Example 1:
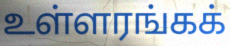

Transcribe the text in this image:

உள்ளரங்கக்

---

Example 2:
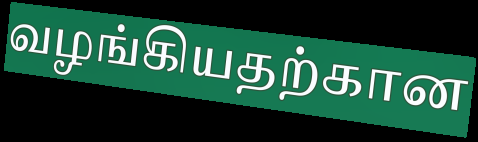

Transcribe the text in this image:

வழங்கியதற்கான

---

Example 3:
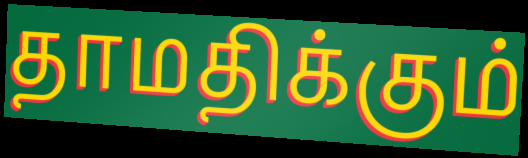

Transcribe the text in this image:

தாமதிக்கும்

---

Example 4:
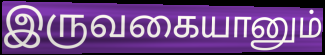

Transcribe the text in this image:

இருவகையானும்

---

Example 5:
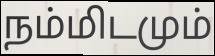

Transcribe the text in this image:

நம்மிடமும்